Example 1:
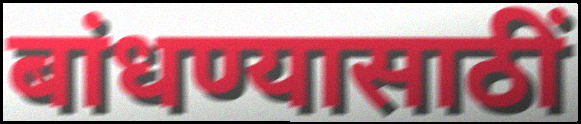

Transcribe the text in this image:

बांधण्यासाठीं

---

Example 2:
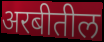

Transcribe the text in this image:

अरबीतील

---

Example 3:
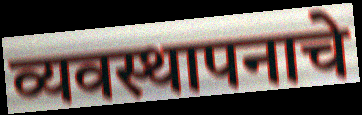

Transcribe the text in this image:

व्यवस्थापनाचे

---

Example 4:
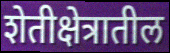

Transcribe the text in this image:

शेतीक्षेत्रातील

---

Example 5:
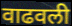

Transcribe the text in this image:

वाढवली